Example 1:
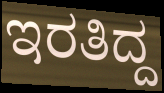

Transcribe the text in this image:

ಇರತಿದ್ದ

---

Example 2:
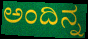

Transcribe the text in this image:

ಅಂದಿನ್ನ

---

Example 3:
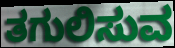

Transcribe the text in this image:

ತಗುಲಿಸುವ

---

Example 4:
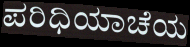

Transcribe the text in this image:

ಪರಿಧಿಯಾಚೆಯ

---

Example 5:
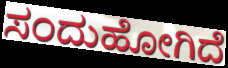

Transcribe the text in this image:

ಸಂದುಹೋಗಿದೆ